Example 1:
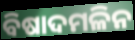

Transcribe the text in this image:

ବିଷାଦମଳିନ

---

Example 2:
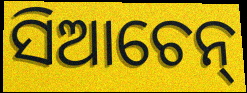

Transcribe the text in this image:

ସିଆଚେନ୍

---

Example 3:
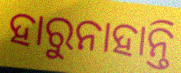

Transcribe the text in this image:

ହାରୁନାହାନ୍ତି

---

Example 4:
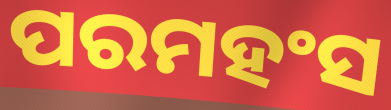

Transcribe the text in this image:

ପରମହଂସ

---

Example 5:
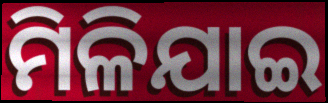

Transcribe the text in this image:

ମିଳିଯାଇ